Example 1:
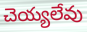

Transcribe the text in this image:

చెయ్యలేవు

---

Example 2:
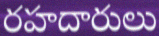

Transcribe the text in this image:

రహదారులు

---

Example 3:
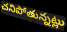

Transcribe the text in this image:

చనిపోతున్నట్లు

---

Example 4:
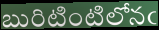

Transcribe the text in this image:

బురిటింటిలోనఁ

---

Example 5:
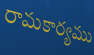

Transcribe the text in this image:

రామకార్యము